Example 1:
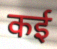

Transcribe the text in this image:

कई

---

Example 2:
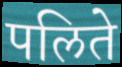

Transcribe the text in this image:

पलिते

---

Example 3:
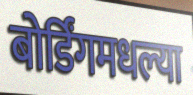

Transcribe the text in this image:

बोर्डिंगमधल्या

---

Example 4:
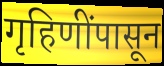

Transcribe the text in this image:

गृहिणींपासून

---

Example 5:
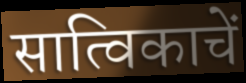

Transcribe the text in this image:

सात्विकाचें